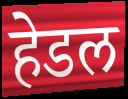
हेडल